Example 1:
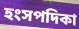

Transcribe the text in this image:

হংসপদিকা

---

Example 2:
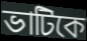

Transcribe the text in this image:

ভাটিকে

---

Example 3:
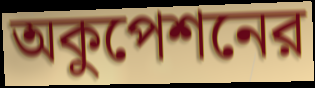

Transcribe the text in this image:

অকুপেশনের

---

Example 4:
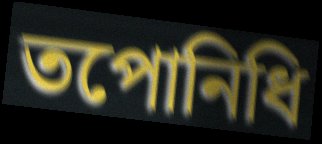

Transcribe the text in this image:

তপোনিধি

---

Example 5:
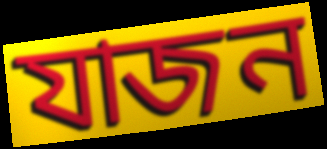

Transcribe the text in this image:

যাজন